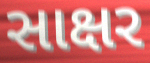
સાક્ષર